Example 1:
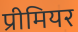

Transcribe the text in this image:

प्रीमियर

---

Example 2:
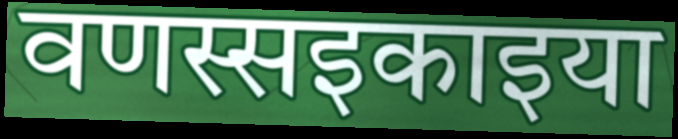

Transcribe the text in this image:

वणस्सइकाइया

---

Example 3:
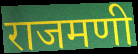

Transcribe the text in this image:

राजमणी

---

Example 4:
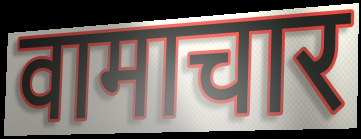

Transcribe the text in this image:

वामाचार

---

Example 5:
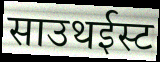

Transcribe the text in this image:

साउथईस्ट